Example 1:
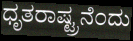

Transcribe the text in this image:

ಧೃತರಾಷ್ಟ್ರನೆಂದು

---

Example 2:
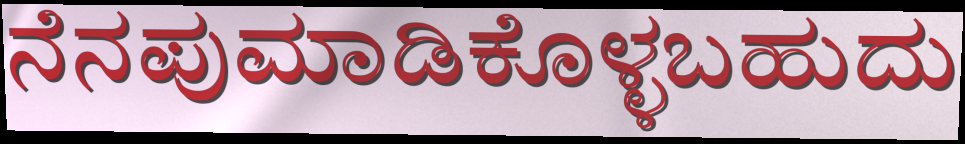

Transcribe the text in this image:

ನೆನಪುಮಾಡಿಕೊಳ್ಳಬಹುದು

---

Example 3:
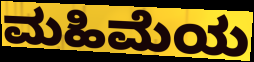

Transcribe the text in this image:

ಮಹಿಮೆಯ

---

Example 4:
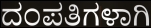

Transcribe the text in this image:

ದಂಪತಿಗಳಾಗಿ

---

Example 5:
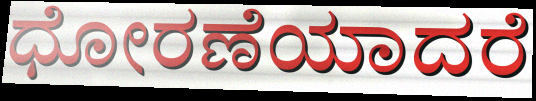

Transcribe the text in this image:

ಧೋರಣೆಯಾದರೆ